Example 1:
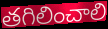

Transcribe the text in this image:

తగిలించాలి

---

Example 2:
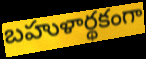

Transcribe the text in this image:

బహుళార్థకంగా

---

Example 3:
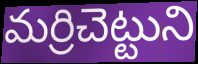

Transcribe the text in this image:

మర్రిచెట్టుని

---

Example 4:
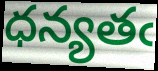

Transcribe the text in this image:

ధన్యతఁ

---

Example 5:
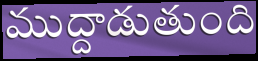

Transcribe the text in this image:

ముద్దాడుతుంది